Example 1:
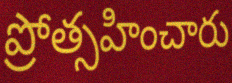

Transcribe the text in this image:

ప్రోత్సహించారు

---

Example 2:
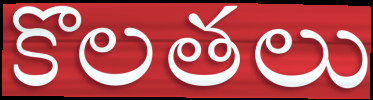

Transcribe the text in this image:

కొలతలు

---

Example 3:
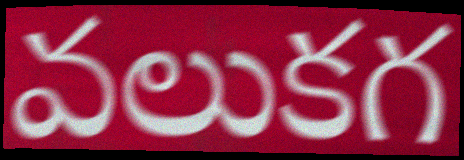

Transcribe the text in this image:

వలుకగ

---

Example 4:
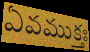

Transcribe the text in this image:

ఏవముక్తః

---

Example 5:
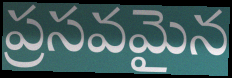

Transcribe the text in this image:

ప్రసవమైన